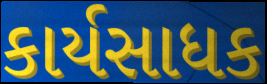
કાર્યસાધક